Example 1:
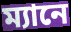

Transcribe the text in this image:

ম্যানে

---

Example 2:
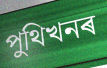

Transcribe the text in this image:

পুথিখনৰ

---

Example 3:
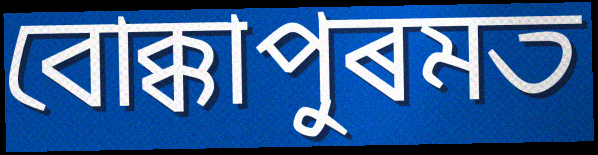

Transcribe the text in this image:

বোক্কাপুৰমত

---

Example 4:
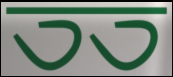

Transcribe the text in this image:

তত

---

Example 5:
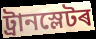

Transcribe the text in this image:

ট্ৰানস্লেটৰ